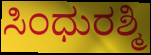
ಸಿಂಧುರಶ್ಮಿ